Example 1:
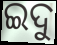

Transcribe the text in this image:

ଇଦୁ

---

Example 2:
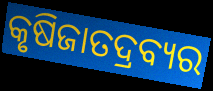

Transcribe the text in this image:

କୃଷିଜାତଦ୍ରବ୍ୟର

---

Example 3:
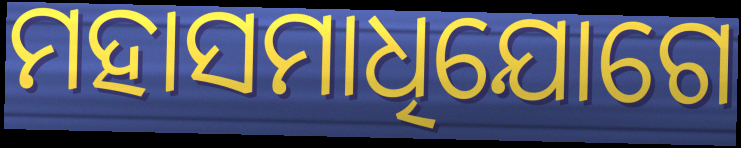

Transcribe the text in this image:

ମହାସମାଧିଯୋଗେ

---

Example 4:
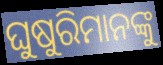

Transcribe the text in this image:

ଘୁଷୁରିମାନଙ୍କୁ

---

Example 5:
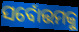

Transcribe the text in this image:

ସର୍ବୋତ୍ତମକୁ